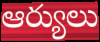
ఆర్యులు